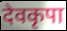
देवकृपा